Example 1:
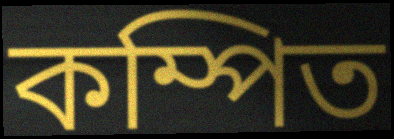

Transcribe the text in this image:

কম্পিত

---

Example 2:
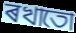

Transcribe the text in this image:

ৰখাতো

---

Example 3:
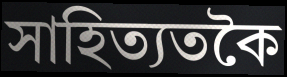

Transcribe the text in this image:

সাহিত্যতকৈ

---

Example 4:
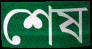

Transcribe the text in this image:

শেষ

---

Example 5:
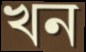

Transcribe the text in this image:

খন